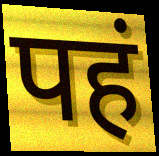
पहं